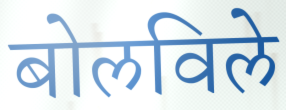
बोलविले